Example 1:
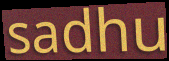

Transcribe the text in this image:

sadhu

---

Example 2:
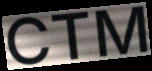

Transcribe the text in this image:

CTM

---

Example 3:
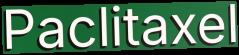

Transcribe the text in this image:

Paclitaxel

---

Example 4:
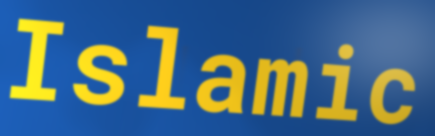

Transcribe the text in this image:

Islamic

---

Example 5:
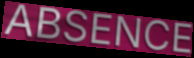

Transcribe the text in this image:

ABSENCE